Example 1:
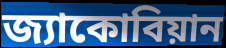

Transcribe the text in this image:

জ্যাকোবিয়ান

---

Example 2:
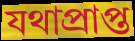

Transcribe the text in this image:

যথাপ্রাপ্ত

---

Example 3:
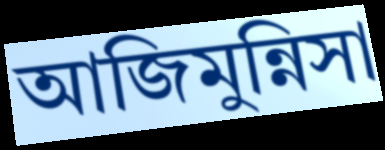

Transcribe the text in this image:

আজিমুন্নিসা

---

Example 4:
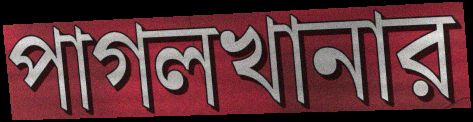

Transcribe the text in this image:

পাগলখানার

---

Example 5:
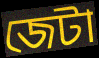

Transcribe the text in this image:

জেটা